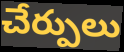
చేర్పులు